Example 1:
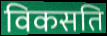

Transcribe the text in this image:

विकसति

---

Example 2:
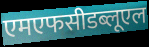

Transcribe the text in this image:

एमएफसीडब्‍लूएल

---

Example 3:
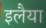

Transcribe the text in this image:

इलैया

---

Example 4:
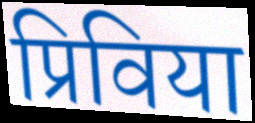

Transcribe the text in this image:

प्रिविया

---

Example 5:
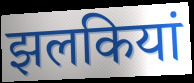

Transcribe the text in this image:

झलकियां